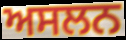
ਅਸਲਨ